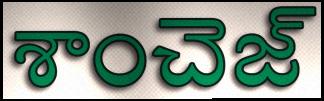
శాంచెజ్